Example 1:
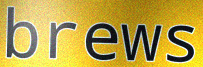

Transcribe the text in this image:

brews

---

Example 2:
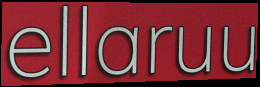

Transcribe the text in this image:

ellaruu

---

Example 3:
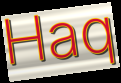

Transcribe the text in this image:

Haq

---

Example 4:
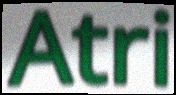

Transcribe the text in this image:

Atri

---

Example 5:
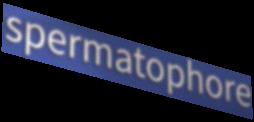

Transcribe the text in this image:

spermatophore